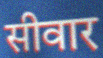
सीवार